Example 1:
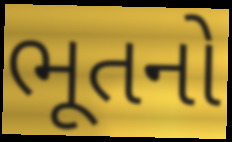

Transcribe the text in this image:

ભૂતનો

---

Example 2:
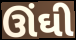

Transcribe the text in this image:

ઊંઘી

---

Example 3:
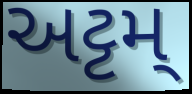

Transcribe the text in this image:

અટ્ટમ્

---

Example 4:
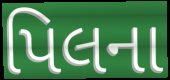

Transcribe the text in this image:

પિલના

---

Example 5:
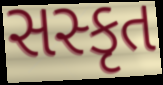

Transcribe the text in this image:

સસ્કૃત